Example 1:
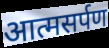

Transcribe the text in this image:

आत्मसर्पण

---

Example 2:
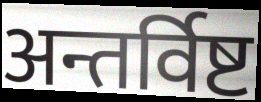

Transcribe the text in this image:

अन्तर्विष्ट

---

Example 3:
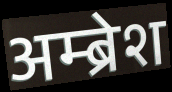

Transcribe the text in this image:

अम्ब्रेश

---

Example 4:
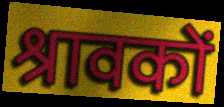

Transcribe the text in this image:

श्रावकों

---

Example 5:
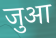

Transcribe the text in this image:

जुआ